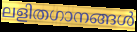
ലളിതഗാനങ്ങൾ